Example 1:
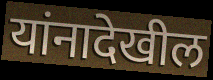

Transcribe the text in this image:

यांनादेखील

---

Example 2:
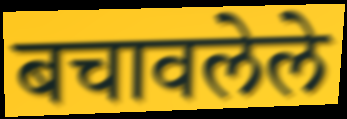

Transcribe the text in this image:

बचावलेले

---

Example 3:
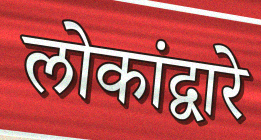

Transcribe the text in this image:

लोकांद्वारे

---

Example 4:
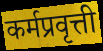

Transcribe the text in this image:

कर्मप्रवृत्ती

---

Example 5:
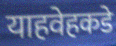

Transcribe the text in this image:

याहवेहकडे